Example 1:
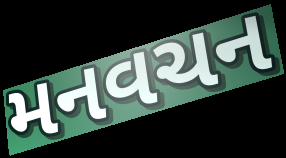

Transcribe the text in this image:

મનવચન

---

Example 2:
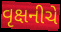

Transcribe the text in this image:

વૃક્ષનીચે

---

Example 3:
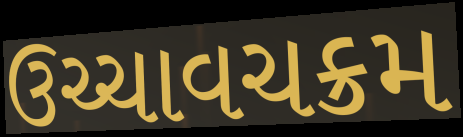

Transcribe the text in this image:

ઉચ્ચાવચક્રમ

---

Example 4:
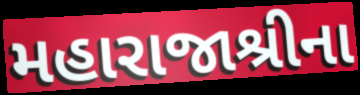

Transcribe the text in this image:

મહારાજાશ્રીના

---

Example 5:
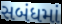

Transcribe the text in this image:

સબંધમાં